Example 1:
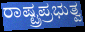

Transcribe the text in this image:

ರಾಷ್ಟ್ರಪ್ರಭುತ್ವ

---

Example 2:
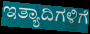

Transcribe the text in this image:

ಇತ್ಯಾದಿಗಳಿಗೆ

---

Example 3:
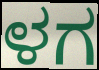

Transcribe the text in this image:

ಳಗ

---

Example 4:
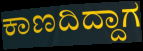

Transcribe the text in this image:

ಕಾಣದಿದ್ದಾಗ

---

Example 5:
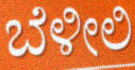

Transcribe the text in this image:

ಬೆಳೀಲಿ